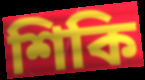
শিকি